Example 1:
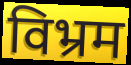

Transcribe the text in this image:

विभ्रम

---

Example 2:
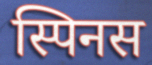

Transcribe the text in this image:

स्पिनस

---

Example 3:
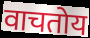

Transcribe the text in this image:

वाचतोय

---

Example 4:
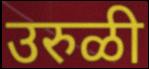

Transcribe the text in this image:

उरुळी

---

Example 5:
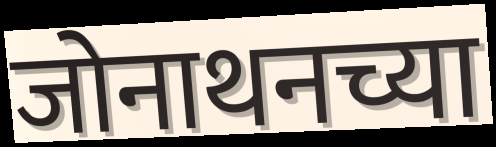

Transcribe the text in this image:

जोनाथनच्या